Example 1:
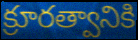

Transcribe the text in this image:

క్రూరత్వానికి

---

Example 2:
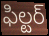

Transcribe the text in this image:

ఫిల్టర్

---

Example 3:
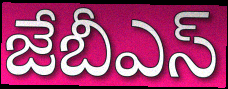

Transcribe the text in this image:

జేబీఎస్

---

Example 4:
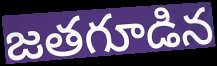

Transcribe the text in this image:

జతగూడిన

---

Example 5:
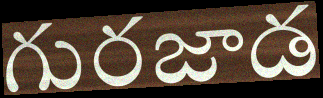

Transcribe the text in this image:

గురజాడ